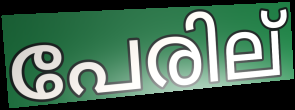
പേരില്